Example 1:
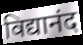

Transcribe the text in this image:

विद्यानंद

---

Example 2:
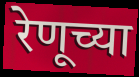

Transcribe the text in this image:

रेणूच्या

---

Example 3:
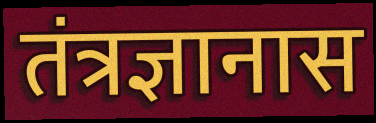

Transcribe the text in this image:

तंत्रज्ञानास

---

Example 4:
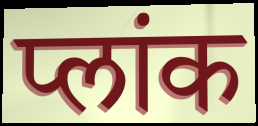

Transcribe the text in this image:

प्लांक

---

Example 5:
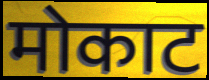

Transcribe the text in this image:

मोकाट